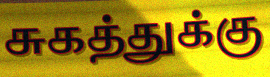
சுகத்துக்கு